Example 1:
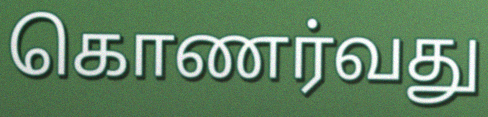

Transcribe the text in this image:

கொணர்வது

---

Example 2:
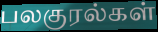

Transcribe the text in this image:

பலகுரல்கள்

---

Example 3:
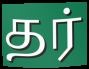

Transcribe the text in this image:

தர்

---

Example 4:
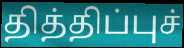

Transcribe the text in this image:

தித்திப்புச்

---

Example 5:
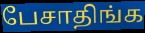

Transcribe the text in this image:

பேசாதிங்க